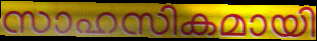
സാഹസികമായി